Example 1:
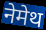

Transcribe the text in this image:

नेमेथ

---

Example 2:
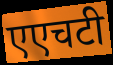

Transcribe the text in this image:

एएचटी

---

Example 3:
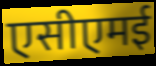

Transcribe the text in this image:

एसीएमई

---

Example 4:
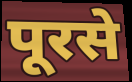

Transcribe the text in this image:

पूरसे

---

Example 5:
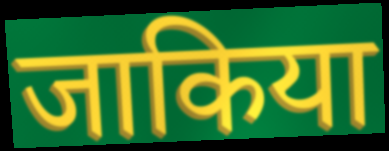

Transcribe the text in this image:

जाकिया